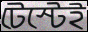
টেস্টেই